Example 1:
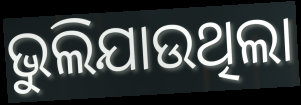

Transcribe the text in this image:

ଭୁଲିଯାଉଥିଲା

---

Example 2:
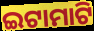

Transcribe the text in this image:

ଇଟାମାଟି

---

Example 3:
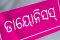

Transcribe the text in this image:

ଡାୟୋନିସସ୍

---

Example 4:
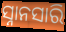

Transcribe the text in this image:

ସ୍ନାନସାରି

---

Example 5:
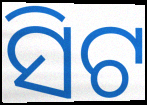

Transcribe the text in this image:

ସିଟ